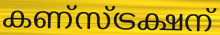
കണ്സ്ട്രക്ഷന്